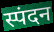
स्पंदन